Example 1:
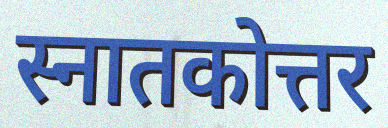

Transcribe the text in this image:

स्नातकोत्तर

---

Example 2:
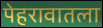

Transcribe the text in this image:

पेहरावातला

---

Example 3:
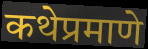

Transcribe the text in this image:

कथेप्रमाणे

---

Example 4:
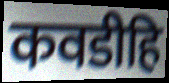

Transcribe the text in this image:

कवडीहि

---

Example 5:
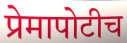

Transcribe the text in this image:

प्रेमापोटीच